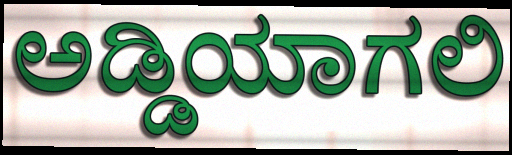
ಅಡ್ಡಿಯಾಗಲಿ